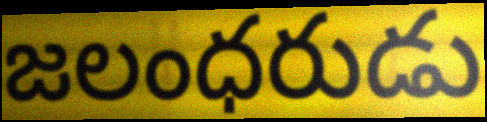
జలంధరుడు